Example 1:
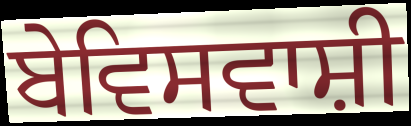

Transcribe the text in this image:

ਬੇਵਿਸਵਾਸ਼ੀ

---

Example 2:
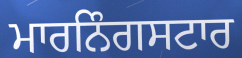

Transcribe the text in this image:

ਮਾਰਨਿੰਗਸਟਾਰ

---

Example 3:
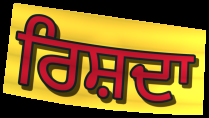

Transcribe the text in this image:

ਰਿਸ਼ਦਾ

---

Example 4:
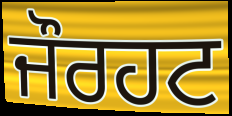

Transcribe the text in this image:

ਜੌਰਹਟ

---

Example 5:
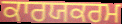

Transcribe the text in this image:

ਕਾਰਯਕਰਮ